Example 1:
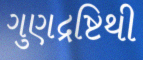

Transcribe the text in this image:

ગુણદ્રષ્ટિથી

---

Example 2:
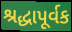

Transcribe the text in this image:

શ્રદ્ધાપૂર્વક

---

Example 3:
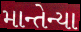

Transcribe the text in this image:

માન્તેન્યા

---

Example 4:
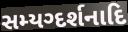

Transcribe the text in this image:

સમ્યગ્દર્શનાદિ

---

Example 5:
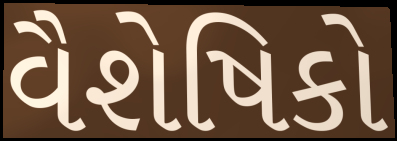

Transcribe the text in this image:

વૈશેષિકો